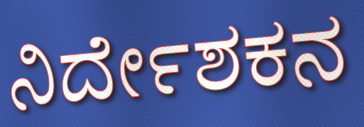
ನಿರ್ದೇಶಕನ